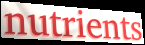
nutrients